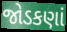
જોડકણાં